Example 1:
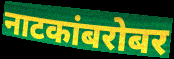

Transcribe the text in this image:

नाटकांबरोबर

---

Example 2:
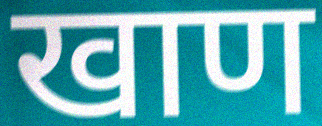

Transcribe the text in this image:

खाण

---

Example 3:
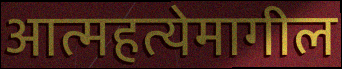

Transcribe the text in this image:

आत्महत्येमागील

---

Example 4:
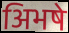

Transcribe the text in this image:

अिभषे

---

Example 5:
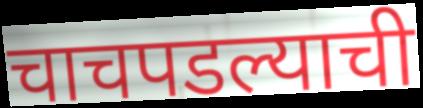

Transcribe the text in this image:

चाचपडल्याची